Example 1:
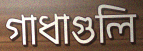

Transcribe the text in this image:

গাধাগুলি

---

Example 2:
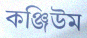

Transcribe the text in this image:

কঞ্জিউম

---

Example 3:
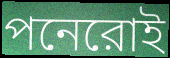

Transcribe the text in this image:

পনেরোই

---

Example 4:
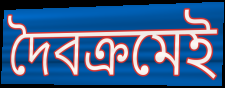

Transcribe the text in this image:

দৈবক্রমেই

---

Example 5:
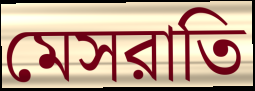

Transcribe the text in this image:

মেসরাতি